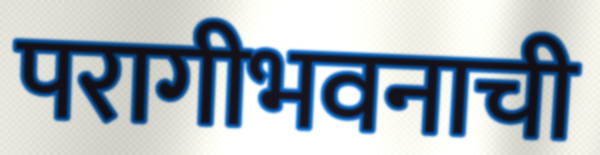
परागीभवनाची